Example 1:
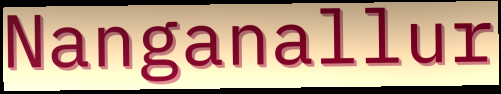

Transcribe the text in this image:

Nanganallur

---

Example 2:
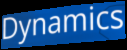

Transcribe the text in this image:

Dynamics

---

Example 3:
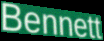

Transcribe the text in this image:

Bennett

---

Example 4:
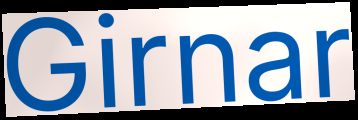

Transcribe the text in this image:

Girnar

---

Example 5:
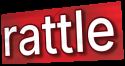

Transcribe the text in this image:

rattle